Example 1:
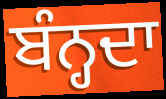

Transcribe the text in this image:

ਬੰਨ੍ਹਦਾ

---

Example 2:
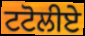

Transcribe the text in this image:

ਟਟੋਲੀਏ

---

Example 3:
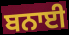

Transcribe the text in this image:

ਬਨਾਈ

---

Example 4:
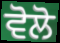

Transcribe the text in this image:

ਵੋਲੋ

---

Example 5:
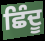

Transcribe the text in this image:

ਛਿੰਦੂ